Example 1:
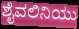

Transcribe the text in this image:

ಶೈವಲಿನಿಯು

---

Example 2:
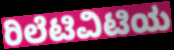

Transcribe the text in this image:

ರಿಲೆಟಿವಿಟಿಯ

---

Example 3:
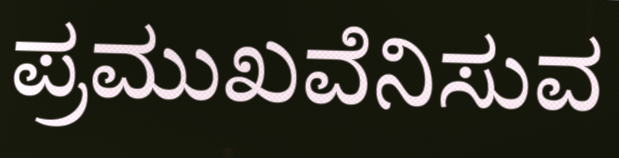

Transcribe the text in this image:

ಪ್ರಮುಖವೆನಿಸುವ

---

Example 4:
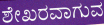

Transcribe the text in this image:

ಶೇಖರವಾಗುವ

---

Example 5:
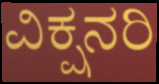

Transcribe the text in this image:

ವಿಕ್ಷನರಿ